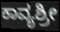
ಕಾವ್ಯಶ್ರೀ